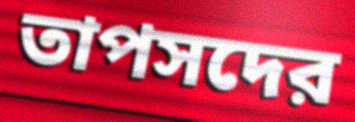
তাপসদের